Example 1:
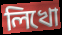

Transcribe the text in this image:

লিখো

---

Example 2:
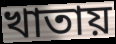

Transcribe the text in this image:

খাতায়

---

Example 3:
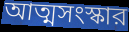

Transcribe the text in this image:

আত্মসংস্কার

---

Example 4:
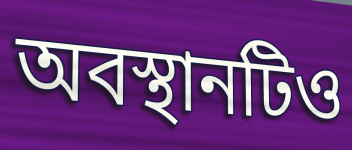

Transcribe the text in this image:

অবস্থানটিও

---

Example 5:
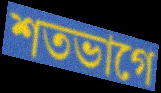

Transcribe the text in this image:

শতভাগে